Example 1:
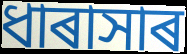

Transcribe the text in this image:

ধাৰাসাৰ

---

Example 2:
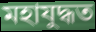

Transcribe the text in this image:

মহাযুদ্ধত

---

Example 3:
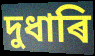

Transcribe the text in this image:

দুধাৰি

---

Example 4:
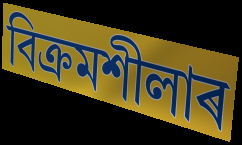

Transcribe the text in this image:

বিক্ৰমশীলাৰ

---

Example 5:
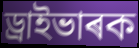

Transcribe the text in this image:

ড্ৰাইভাৰক